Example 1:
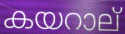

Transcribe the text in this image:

കയറാല്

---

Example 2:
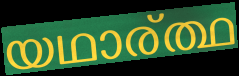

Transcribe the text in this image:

യഥാര്ത്ഥ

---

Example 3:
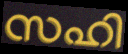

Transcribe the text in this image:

സഹി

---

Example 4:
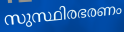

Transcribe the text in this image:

സുസ്ഥിരഭരണം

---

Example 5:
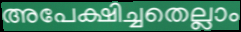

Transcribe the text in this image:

അപേക്ഷിച്ചതെല്ലാം